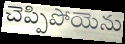
చెప్పిపోయెను